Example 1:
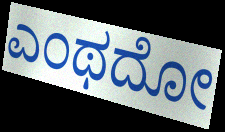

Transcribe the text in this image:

ಎಂಥದೋ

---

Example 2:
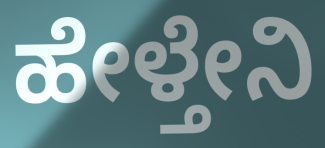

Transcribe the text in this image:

ಹೇಳ್ತೇನಿ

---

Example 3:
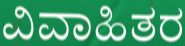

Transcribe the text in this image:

ವಿವಾಹಿತರ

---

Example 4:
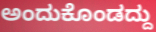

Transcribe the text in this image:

ಅಂದುಕೊಂಡದ್ದು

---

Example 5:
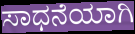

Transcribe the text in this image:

ಸಾಧನೆಯಾಗಿ